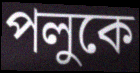
পলুকে